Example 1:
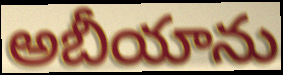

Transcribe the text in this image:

అబీయాను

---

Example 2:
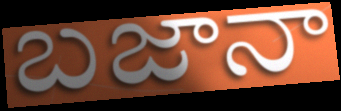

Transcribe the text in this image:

బజానా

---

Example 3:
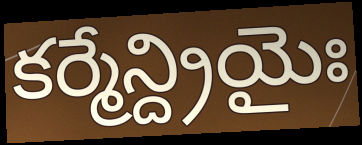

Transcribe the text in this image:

కర్మేన్ద్రియైః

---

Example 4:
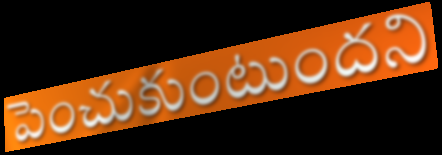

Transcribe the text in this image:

పెంచుకుంటుందని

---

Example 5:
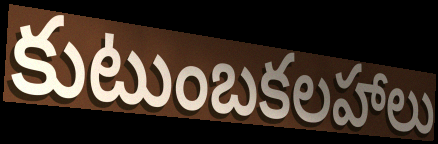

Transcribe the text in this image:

కుటుంబకలహాలు